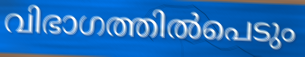
വിഭാഗത്തിൽപെടും